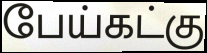
பேய்கட்கு